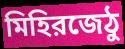
মিহিরজেঠু